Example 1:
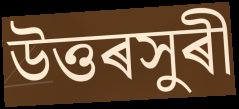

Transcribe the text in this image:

উত্তৰসুৰী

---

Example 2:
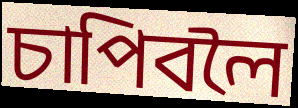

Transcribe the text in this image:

চাপিবলৈ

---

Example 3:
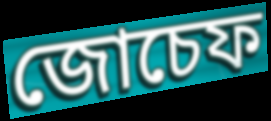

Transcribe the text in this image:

জোচেফ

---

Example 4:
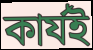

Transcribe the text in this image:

কাৰ্যই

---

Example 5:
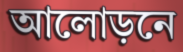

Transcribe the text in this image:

আলোড়নে